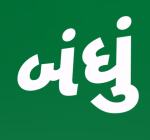
બંધું